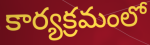
కార్యక్రమంలో